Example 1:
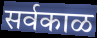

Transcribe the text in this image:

सर्वकाळ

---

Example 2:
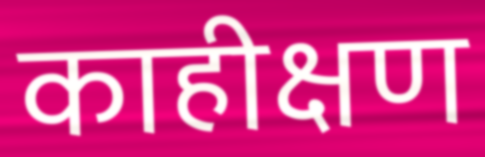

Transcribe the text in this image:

काहीक्षण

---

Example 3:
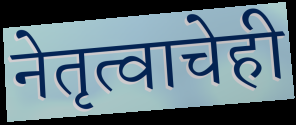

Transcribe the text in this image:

नेतृत्वाचेही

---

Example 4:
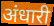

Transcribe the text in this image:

अंधारी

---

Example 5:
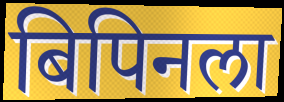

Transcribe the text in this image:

बिपिनला